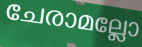
ചേരാമല്ലോ